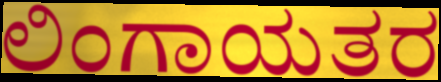
ಲಿಂಗಾಯತರ